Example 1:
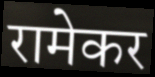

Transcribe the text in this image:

रामेकर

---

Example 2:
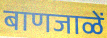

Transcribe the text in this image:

बाणजाळें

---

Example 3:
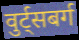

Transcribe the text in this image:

वुर्ट्सबर्ग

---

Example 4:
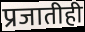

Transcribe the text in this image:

प्रजातीही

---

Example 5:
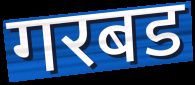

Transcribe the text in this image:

गरबड